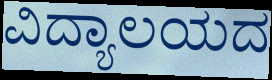
ವಿದ್ಯಾಲಯದ